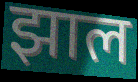
झाल